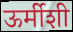
ऊर्मीशी